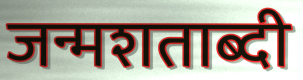
जन्मशताब्दी